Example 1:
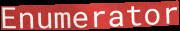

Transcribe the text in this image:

Enumerator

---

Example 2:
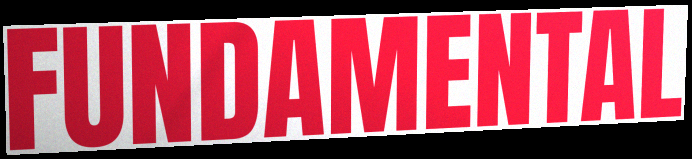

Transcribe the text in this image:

FUNDAMENTAL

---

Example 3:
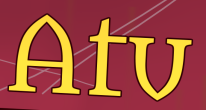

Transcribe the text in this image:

Atu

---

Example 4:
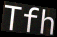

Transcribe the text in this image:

Tfh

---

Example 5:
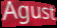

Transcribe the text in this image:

Agust